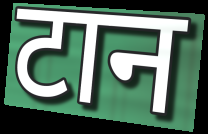
टान